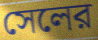
সেলের